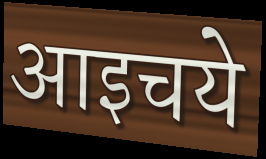
आइचये